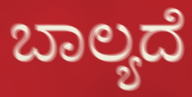
ಬಾಲ್ಯದೆ